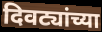
दिवट्यांच्या